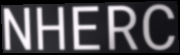
NHERC